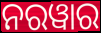
ନରୱାର